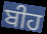
ਬੀਹ